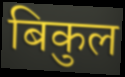
बिकुल